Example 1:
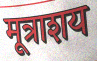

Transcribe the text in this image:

मूत्राशय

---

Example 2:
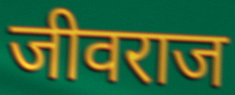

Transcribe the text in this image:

जीवराज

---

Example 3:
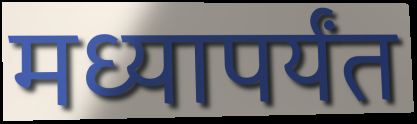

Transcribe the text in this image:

मध्यापर्यंत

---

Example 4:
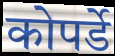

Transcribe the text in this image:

कोपर्डे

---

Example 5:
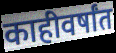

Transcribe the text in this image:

काहीवर्षांत